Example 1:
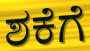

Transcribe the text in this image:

ಶಕೆಗೆ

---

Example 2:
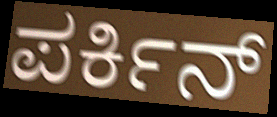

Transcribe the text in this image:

ಪರ್ಕಿನ್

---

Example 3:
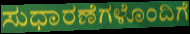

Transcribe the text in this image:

ಸುಧಾರಣೆಗಳೊಂದಿಗೆ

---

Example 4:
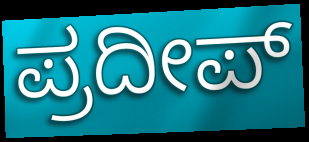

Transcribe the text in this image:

ಪ್ರದೀಪ್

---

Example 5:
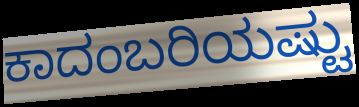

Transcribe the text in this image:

ಕಾದಂಬರಿಯಷ್ಟು